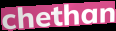
chethan